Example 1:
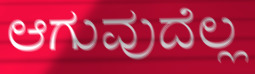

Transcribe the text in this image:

ಆಗುವುದೆಲ್ಲ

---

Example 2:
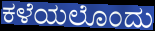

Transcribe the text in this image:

ಕಳೆಯಲೊಂದು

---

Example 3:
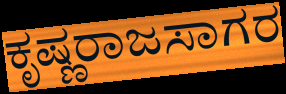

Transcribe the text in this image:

ಕೃಷ್ಣರಾಜಸಾಗರ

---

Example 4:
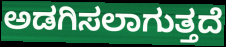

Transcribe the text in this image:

ಅಡಗಿಸಲಾಗುತ್ತದೆ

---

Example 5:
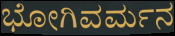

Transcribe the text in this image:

ಭೋಗಿವರ್ಮನ